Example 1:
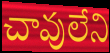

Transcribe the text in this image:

చావులేని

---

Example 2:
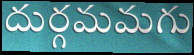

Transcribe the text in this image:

దుర్గమమగు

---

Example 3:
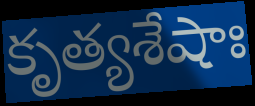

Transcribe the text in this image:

కృత్యశేషాః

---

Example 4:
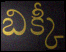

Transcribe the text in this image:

బిక్కీ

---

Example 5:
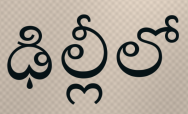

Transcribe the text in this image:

ఢిల్లీలో